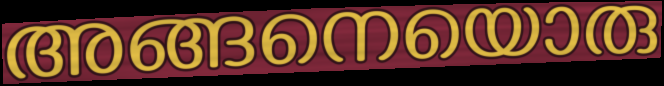
അങ്ങനെയൊരു